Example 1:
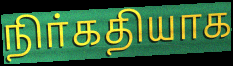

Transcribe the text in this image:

நிர்கதியாக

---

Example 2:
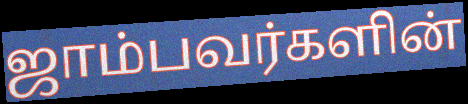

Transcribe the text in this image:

ஜாம்பவர்களின்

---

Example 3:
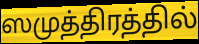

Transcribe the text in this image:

ஸமுத்திரத்தில்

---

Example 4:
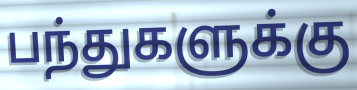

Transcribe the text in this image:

பந்துகளுக்கு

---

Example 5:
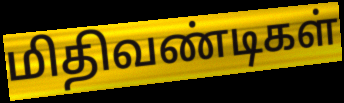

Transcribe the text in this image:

மிதிவண்டிகள்